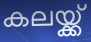
കലയ്ക്ക്